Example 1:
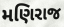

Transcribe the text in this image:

મણિરાજ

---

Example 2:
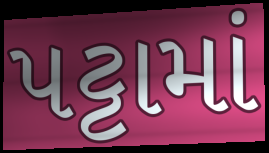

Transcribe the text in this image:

પટ્ટામાં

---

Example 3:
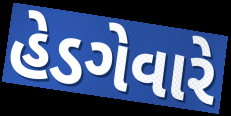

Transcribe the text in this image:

હેડગેવારે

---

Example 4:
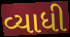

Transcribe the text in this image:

વ્યાધી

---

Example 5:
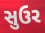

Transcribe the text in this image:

સુઉર